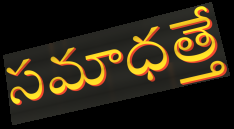
సమాధత్తే